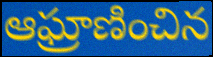
ఆఘ్రాణించిన